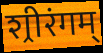
श्रीरंगम्